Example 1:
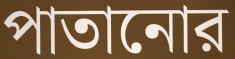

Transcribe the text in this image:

পাতানোর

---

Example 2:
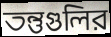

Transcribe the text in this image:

তন্তুগুলির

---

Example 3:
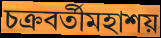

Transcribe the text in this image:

চক্রবর্তীমহাশয়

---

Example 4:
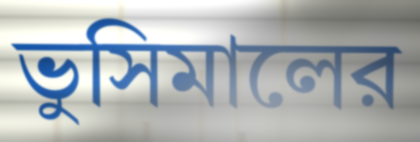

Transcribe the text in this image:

ভুসিমালের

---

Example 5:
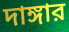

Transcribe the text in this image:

দাঙ্গার